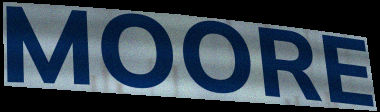
MOORE